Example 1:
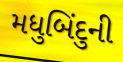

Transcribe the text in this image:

મધુબિંદુની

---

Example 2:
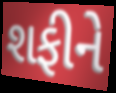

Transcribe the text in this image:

શફીને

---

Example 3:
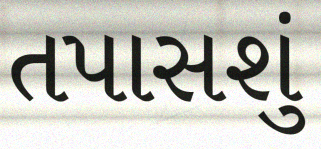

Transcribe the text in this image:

તપાસશું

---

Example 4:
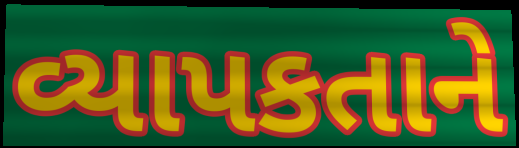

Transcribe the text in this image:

વ્યાપકતાને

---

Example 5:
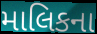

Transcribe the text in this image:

માલિકના